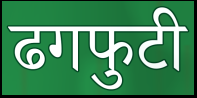
ढगफुटी